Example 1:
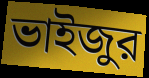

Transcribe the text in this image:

ভাইজুর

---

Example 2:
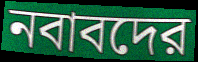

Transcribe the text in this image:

নবাবদের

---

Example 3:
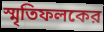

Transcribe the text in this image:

স্মৃতিফলকের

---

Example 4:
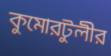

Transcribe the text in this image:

কুমোরটুলীর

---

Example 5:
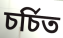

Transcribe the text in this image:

চর্চিত